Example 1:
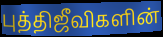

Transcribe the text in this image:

புத்திஜீவிகளின்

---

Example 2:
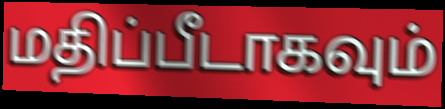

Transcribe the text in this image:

மதிப்பீடாகவும்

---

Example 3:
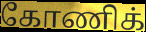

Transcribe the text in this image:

கோணிக்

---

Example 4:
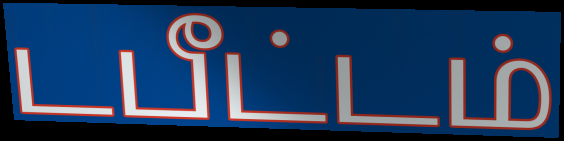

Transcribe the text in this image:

டபீட்டம்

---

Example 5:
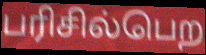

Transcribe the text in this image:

பரிசில்பெற